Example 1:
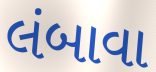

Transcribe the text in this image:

લંબાવા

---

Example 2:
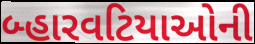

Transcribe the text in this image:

બ્હારવટિયાઓની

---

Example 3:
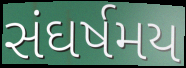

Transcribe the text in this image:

સંઘર્ષમય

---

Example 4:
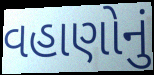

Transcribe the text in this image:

વહાણોનું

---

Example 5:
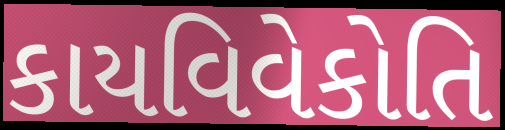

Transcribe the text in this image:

કાયવિવેકોતિ